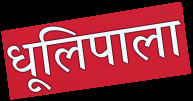
धूलिपाला